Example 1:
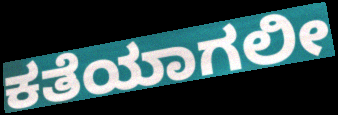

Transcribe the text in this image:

ಕತೆಯಾಗಲೀ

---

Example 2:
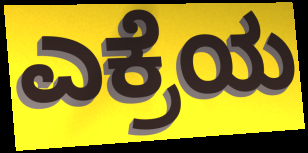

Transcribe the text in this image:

ಎಕ್ರೆಯ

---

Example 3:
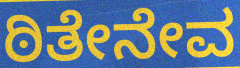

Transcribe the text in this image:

ಠಿತೇನೇವ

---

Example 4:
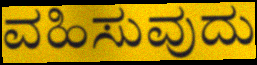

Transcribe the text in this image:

ವಹಿಸುವುದು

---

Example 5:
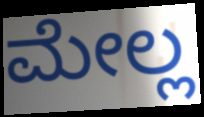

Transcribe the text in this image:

ಮೇಲ್ಲ